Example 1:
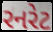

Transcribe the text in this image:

રનરેટ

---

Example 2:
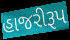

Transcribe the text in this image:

હાજરીરૂપ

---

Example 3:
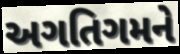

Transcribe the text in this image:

અગતિગમને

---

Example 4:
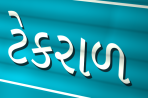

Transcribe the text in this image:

ટેકરાળ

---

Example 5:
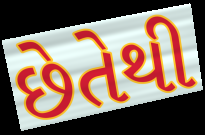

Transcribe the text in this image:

છેતેથી